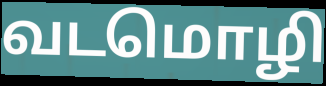
வடமொழி